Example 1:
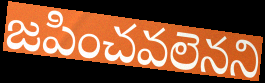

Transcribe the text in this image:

జపించవలెనని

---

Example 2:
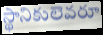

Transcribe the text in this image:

స్థానికులెవరూ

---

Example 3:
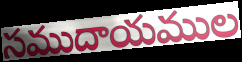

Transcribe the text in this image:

సముదాయముల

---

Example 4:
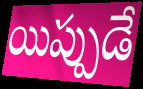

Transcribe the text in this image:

యిప్పుడే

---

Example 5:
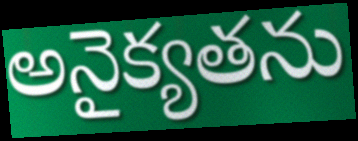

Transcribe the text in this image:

అనైక్యతను